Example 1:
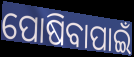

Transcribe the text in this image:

ପୋଷିବାପାଇଁ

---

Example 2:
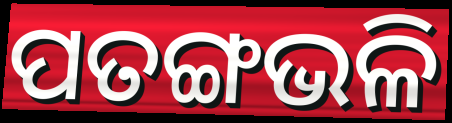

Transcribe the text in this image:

ପତଙ୍ଗଭଳି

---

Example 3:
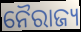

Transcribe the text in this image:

ନୈରାଜ୍ୟ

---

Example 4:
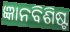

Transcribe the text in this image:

ଜ୍ଞାନବିଶିଷ୍ଟ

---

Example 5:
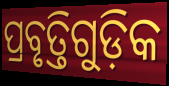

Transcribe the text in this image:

ପ୍ରବୃତ୍ତିଗୁଡ଼ିକ